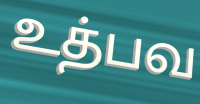
உத்பவ